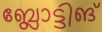
ബ്ലോട്ടിങ്